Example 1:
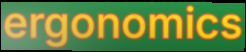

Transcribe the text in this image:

ergonomics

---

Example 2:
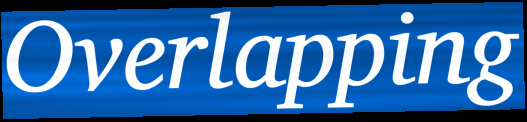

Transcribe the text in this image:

Overlapping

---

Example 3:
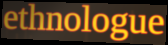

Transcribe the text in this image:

ethnologue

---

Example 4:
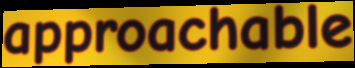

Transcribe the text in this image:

approachable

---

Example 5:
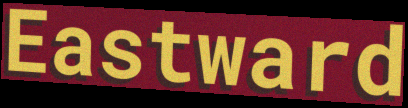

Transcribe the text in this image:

Eastward